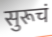
सुरूचं